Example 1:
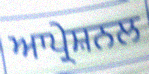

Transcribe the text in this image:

ਆਪ੍ਰੇਸ਼ਨਲ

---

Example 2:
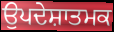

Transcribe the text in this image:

ਉਪਦੇਸ਼ਾਤਮਕ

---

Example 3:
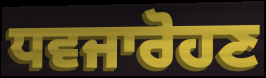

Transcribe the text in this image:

ਧਵਜਾਰੋਹਣ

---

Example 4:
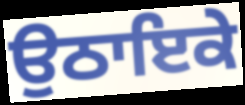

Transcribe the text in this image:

ਉਠਾਇਕੇ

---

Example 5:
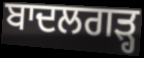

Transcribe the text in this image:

ਬਾਦਲਗੜ੍ਹ